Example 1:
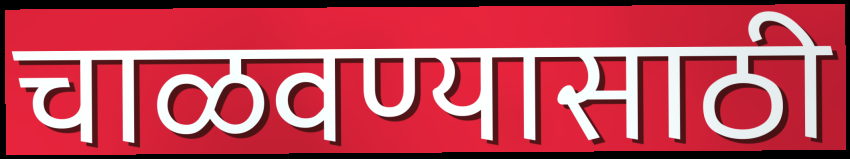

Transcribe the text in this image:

चाळवण्यासाठी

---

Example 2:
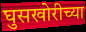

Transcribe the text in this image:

घुसखोरीच्या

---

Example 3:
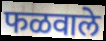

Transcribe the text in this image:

फळवाले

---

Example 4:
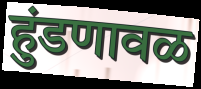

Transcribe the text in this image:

हुंडणावळ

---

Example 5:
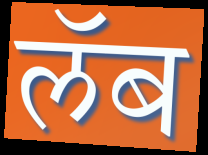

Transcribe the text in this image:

लॅब